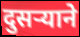
दुसऱ्याने